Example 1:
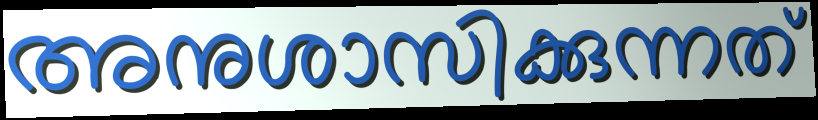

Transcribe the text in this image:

അനുശാസിക്കുന്നത്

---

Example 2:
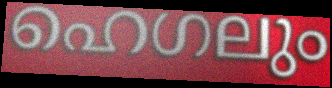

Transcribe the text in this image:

ഹെഗലും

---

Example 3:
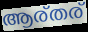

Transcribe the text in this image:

ആര്തര്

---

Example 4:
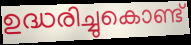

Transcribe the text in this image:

ഉദ്ധരിച്ചുകൊണ്ട്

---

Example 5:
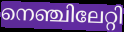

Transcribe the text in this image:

നെഞ്ചിലേറ്റി